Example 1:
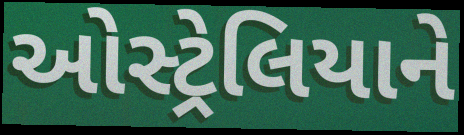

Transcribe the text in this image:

ઓસ્ટ્રેલિયાને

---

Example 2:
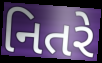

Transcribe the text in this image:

નિતરે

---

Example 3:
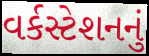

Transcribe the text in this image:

વર્કસ્ટેશનનું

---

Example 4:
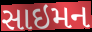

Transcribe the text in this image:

સાઇમન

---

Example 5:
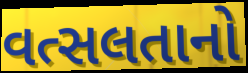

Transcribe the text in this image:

વત્સલતાનો